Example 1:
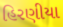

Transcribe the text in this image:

હિરણીયા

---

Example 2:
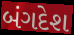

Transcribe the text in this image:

બંગદેશ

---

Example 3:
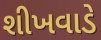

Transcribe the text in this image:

શીખવાડે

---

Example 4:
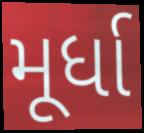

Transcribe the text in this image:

મૂર્ધા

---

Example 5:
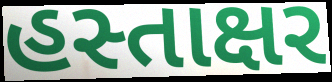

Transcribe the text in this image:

હસ્તાક્ષર